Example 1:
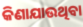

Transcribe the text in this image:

କିଣାଯାଉଥିବା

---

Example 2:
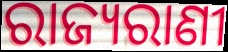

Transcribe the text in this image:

ରାଜ୍ୟରାଣୀ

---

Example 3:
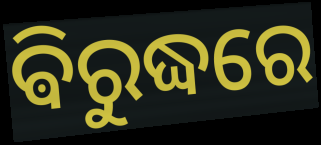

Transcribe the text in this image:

ଵିରୁଦ୍ଧରେ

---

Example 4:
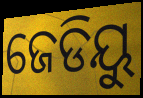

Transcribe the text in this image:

ଜେଡିୟୁ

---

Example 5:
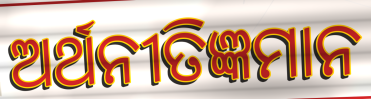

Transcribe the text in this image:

ଅର୍ଥନୀତିଜ୍ଞମାନ